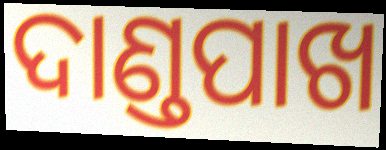
ଦାଣ୍ଡପାଖ